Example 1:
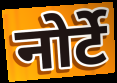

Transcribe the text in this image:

नोर्टे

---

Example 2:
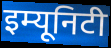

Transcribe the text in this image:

इम्यूनिटी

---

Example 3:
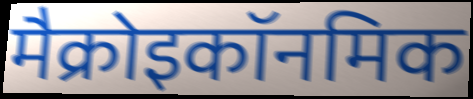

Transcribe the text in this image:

मैक्रोइकॉनमिक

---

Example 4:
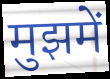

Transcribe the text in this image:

मुझमें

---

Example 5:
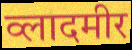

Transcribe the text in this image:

व्लादमीर